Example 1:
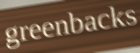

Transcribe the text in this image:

greenbacks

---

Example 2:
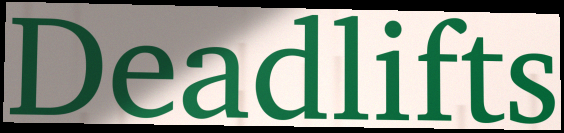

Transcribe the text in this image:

Deadlifts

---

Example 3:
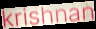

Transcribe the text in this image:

krishnan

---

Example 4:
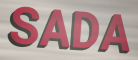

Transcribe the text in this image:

SADA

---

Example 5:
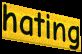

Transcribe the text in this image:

hating